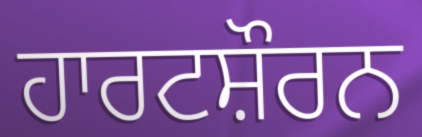
ਹਾਰਟਸ਼ੌਰਨ